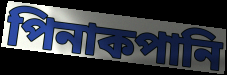
পিনাকপানি